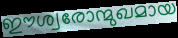
ഈശ്വരോന്മുഖമായ